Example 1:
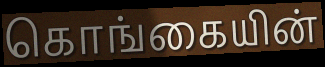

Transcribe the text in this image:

கொங்கையின்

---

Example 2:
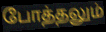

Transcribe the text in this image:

போத்தலும்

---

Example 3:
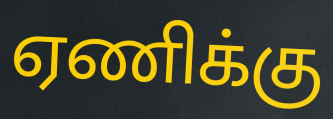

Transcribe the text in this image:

ஏணிக்கு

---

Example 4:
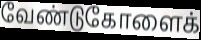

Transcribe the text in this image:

வேண்டுகோளைக்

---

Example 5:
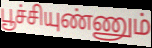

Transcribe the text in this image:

பூச்சியுண்ணும்